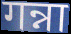
गन्ना